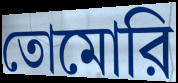
তোমোরি